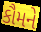
કૌમને